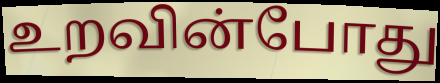
உறவின்போது